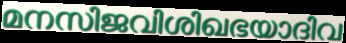
മനസിജവിശിഖഭയാദിവ